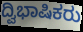
ದ್ವಿಭಾಷಿಕರು